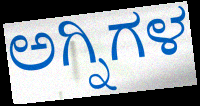
ಅಗ್ನಿಗಳ